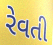
રેવતી